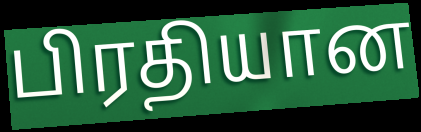
பிரதியான